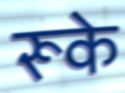
रूके